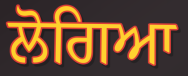
ਲੋਗਿਆ